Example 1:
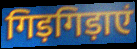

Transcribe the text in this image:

गिड़गिड़ाएं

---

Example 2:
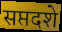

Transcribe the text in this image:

सप्तदशे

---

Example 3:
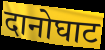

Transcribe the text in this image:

दानोघाट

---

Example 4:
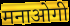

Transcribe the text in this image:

मनाओगी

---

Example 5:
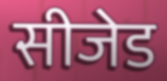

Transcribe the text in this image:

सीजेड